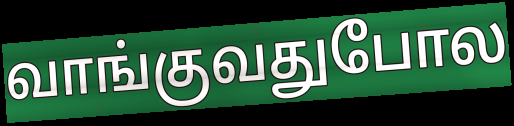
வாங்குவதுபோல